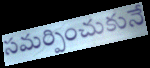
సమర్పించుకునే